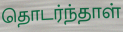
தொடர்ந்தாள்